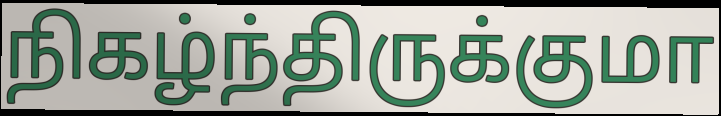
நிகழ்ந்திருக்குமா